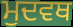
ਮੁਦਵਥ